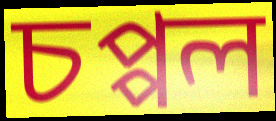
চপ্পল